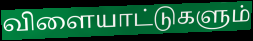
விளையாட்டுகளும்